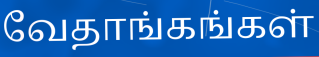
வேதாங்கங்கள்